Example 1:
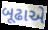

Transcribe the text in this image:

બૂઢાએ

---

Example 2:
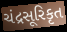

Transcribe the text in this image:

ચંદ્રસૂરિકૃત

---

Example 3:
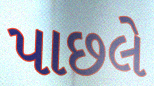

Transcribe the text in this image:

પાછલે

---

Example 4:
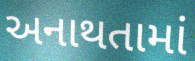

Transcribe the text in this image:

અનાથતામાં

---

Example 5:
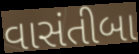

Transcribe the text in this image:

વાસંતીબા